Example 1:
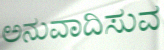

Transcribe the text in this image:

ಅನುವಾದಿಸುವ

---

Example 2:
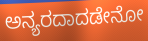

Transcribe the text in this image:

ಅನ್ಯರದಾದಡೇನೋ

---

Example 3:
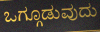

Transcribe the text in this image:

ಒಗ್ಗೂಡುವುದು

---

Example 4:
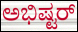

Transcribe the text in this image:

ಅಭಿಷ್ಟರ್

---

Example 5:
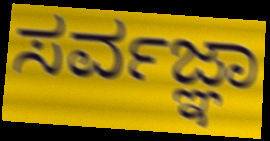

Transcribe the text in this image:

ಸರ್ವಜ್ಞಾ